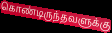
கொண்டிருந்தவளுக்கு